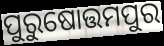
ପୁରୁଷୋତ୍ତମପୁର